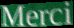
Merci